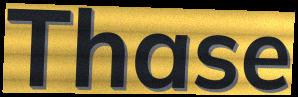
Thase